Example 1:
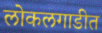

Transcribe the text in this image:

लोकलगाडीत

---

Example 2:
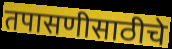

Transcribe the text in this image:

तपासणीसाठीचे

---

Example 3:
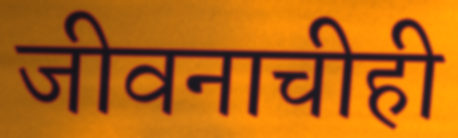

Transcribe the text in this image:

जीवनाचीही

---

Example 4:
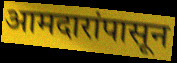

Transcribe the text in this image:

आमदारांपासून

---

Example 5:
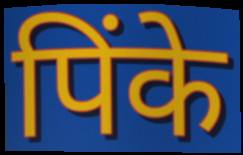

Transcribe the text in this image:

पिंके